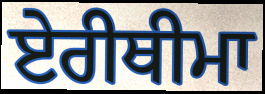
ਏਰੀਥੀਮਾ